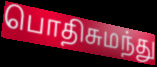
பொதிசுமந்து